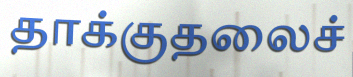
தாக்குதலைச்